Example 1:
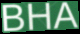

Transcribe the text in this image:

BHA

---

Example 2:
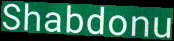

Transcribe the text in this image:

Shabdonu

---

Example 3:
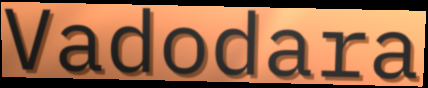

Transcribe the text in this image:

Vadodara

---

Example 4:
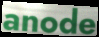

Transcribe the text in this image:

anode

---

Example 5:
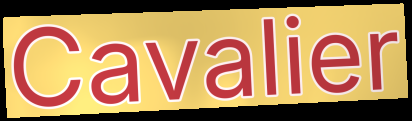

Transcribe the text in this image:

Cavalier